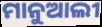
ମାନୁଆଲୀ